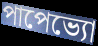
পাপেভ্যো